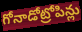
గోనాడోట్రోపిన్లు